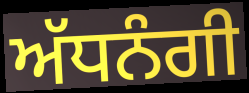
ਅੱਧਨੰਗੀ